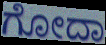
ಗೋದಾ